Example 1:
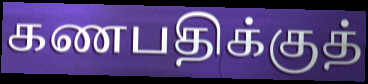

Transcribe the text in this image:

கணபதிக்குத்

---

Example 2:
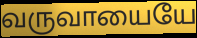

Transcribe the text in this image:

வருவாயையே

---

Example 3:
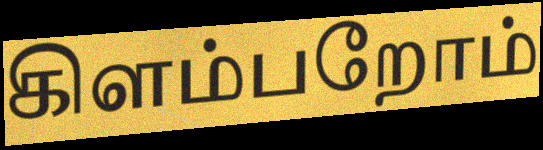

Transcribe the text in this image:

கிளம்பறோம்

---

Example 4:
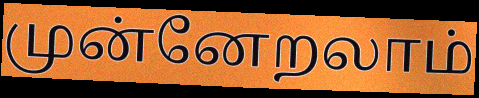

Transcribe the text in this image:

முன்னேறலாம்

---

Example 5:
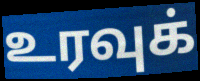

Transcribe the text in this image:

உரவுக்